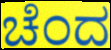
ಚೆಂದ